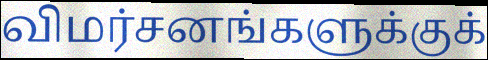
விமர்சனங்களுக்குக்